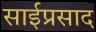
साईप्रसाद